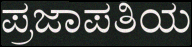
ಪ್ರಜಾಪತಿಯ